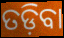
ତଡ଼ିବା